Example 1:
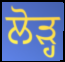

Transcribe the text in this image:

ਲੋੜ੍ਹ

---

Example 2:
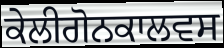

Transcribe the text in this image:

ਕੇਲੀਗੋਨਕਾਲਵਸ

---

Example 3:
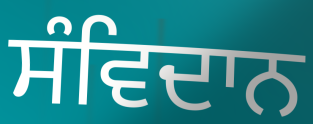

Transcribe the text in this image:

ਸੰਵਿਦਾਨ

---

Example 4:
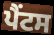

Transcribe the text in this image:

ਪੈਂਟਸ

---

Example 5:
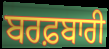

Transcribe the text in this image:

ਬਰਫ਼ਬਾਰੀ